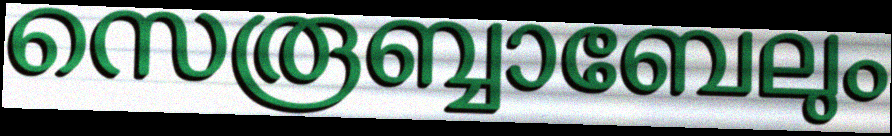
സെരൂബ്ബാബേലും